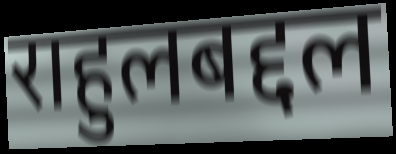
राहुलबद्दल